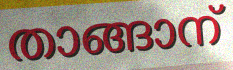
താങ്ങാന്